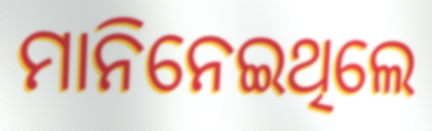
ମାନିନେଇଥିଲେ